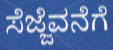
ಸೆಜ್ಜೆವನೆಗೆ